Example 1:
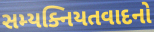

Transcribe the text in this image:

સમ્યક્નિયતવાદનો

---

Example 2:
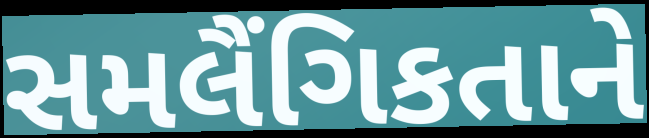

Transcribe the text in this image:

સમલૈંગિકતાને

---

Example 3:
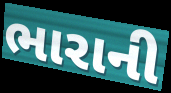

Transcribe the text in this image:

ભારાની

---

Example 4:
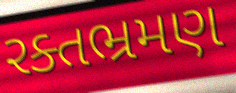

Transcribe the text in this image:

રક્તભ્રમણ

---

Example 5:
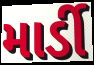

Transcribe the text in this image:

માર્ડી